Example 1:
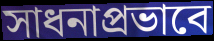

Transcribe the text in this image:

সাধনাপ্রভাবে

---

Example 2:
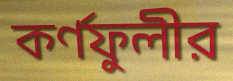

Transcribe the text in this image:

কর্ণফুলীর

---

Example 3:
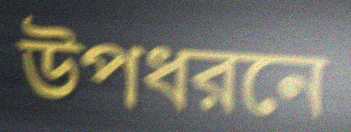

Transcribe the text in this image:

উপধরনে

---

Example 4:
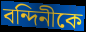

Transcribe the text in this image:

বন্দিনীকে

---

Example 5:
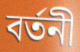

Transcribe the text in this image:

বর্তনী